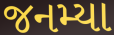
જનમ્યા